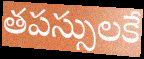
తపస్సులకే